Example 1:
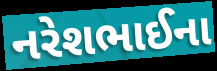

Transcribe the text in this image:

નરેશભાઈના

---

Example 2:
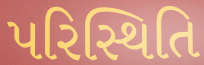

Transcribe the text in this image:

પરિસ્થિતિ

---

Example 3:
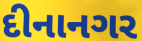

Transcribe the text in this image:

દીનાનગર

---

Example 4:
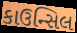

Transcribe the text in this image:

કાઉન્સિલ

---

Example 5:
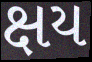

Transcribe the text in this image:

ક્ષય